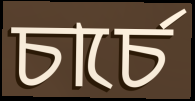
চার্চে